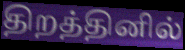
திறத்தினில்